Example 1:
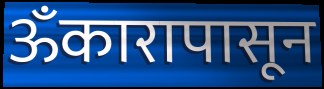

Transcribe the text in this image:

ॐकारापासून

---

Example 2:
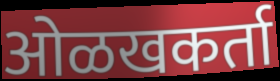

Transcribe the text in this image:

ओळखकर्ता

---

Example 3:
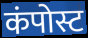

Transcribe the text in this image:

कंपोस्ट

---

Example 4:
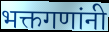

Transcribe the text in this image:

भक्तगणांनी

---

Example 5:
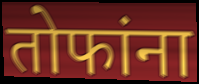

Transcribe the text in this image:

तोफांना